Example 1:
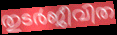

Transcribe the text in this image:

തുടർജീവിത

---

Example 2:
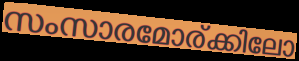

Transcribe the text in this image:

സംസാരമോര്ക്കിലോ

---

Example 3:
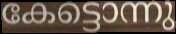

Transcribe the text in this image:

കേട്ടൊന്നു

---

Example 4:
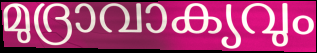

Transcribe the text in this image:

മുദ്രാവാക്യവും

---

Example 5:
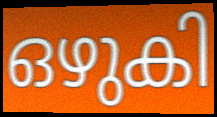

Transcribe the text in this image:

ഒഴുകി